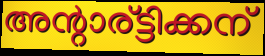
അന്റാര്ട്ടിക്കന്